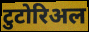
टुटोरिअल